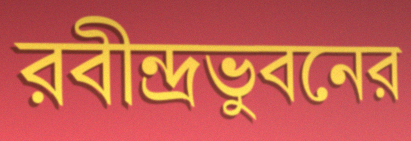
রবীন্দ্রভুবনের